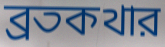
ব্রতকথার